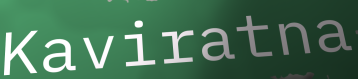
Kaviratna